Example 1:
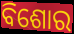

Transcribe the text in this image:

ବିଶୋର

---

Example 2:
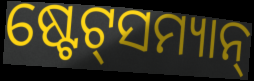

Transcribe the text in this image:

ଷ୍ଟେଟ୍‌ସମ୍ୟାନ୍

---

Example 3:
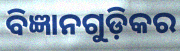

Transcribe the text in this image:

ବିଜ୍ଞାନଗୁଡ଼ିକର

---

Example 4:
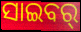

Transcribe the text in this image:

ସାଇବର୍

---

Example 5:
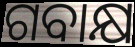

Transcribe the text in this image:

ଗବାକ୍ଷ